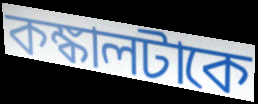
কঙ্কালটাকে